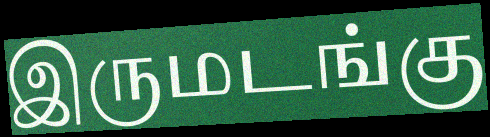
இருமடங்கு